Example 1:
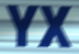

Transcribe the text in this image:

YX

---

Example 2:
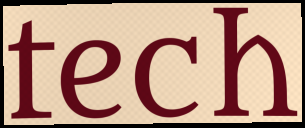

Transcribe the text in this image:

tech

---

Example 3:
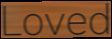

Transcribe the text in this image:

Loved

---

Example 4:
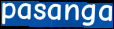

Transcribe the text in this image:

pasanga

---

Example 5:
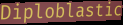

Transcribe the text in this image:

Diploblastic